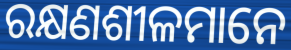
ରକ୍ଷଣଶୀଳମାନେ